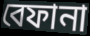
বেফানা